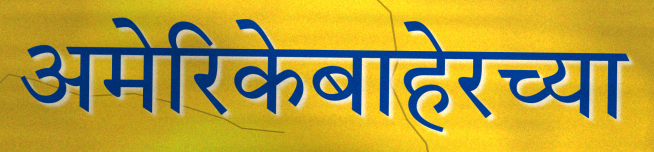
अमेरिकेबाहेरच्या